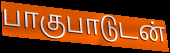
பாகுபாடுடன்